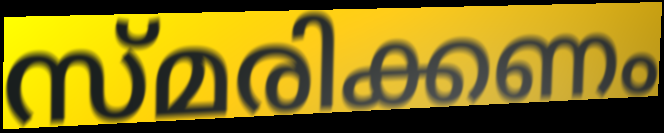
സ്മരിക്കണം